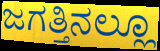
ಜಗತ್ತಿನಲ್ಲೂ